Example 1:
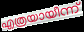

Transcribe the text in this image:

എത്രയായീന്ന്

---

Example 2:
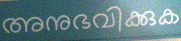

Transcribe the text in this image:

അനുഭവിക്കുക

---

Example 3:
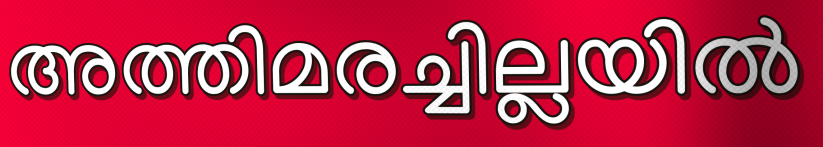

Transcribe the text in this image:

അത്തിമരച്ചില്ലയിൽ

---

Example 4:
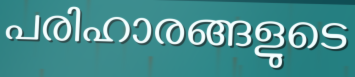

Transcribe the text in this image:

പരിഹാരങ്ങളുടെ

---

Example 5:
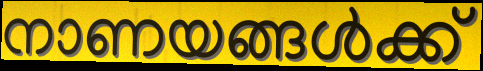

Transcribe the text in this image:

നാണയങ്ങൾക്ക്